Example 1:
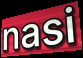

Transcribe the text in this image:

nasi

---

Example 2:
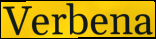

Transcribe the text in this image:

Verbena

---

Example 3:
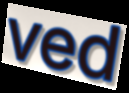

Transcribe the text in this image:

ved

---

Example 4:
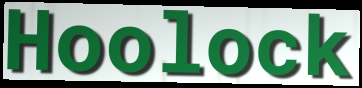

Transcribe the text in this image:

Hoolock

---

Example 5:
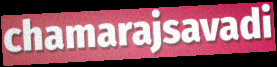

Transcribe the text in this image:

chamarajsavadi